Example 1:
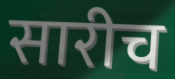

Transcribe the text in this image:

सारीच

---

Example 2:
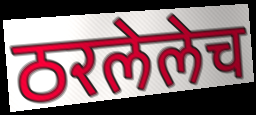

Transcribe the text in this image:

ठरलेलेच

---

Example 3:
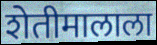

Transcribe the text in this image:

शेतीमालाला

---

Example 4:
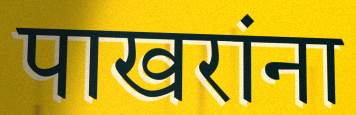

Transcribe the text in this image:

पाखरांना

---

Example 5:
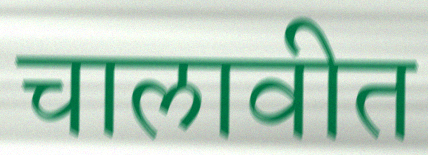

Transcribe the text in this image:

चालावीत